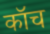
कॉच